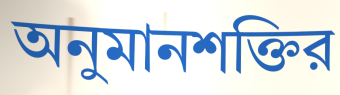
অনুমানশক্তির